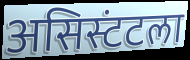
असिस्टंटला